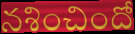
నశించిందో